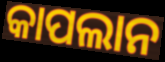
କାପଲାନ